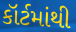
કૉર્ટમાંથી